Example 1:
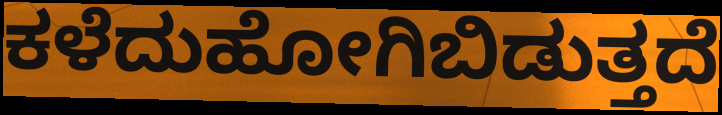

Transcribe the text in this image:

ಕಳೆದುಹೋಗಿಬಿಡುತ್ತದೆ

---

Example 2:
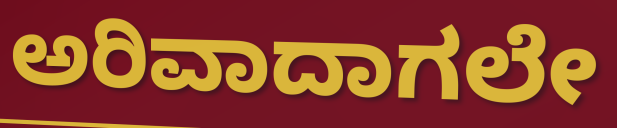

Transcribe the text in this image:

ಅರಿವಾದಾಗಲೇ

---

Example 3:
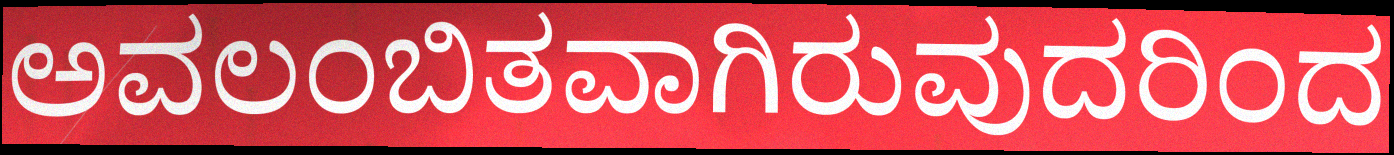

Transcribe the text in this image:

ಅವಲಂಬಿತವಾಗಿರುವುದರಿಂದ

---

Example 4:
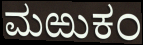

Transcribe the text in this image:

ಮಱುಕಂ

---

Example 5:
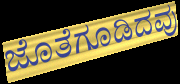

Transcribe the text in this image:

ಜೊತೆಗೂಡಿದವು